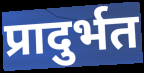
प्रादुर्भत